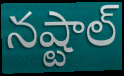
నష్టాల్